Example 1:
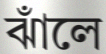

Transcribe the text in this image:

ঝাঁলে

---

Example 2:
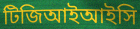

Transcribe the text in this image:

টিজিআইআইসি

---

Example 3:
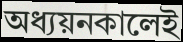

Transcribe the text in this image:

অধ্যয়নকালেই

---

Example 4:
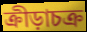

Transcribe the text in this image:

ক্রীড়াচক্র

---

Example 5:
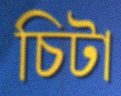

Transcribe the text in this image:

চিটা